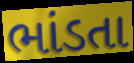
ભાંડતા